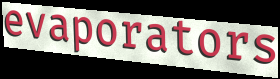
evaporators